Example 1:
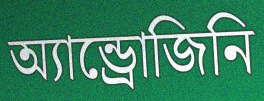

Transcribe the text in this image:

অ্যান্ড্রোজিনি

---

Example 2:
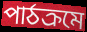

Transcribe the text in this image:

পাঠক্রমে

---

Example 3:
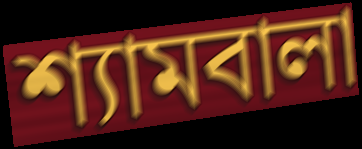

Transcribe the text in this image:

শ্যামবালা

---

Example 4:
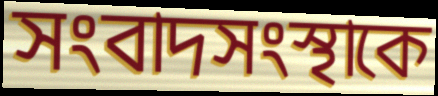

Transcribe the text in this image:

সংবাদসংস্থাকে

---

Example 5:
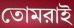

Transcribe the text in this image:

তোমরাই